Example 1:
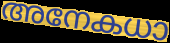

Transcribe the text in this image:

അനേകധാ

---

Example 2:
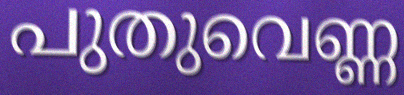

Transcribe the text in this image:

പുതുവെണ്ണ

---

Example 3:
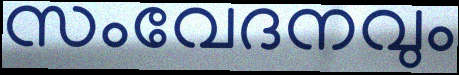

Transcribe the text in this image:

സംവേദനവും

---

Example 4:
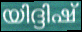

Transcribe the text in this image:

യിദ്ദിഷ്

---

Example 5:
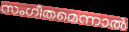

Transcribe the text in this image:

സംഗീതമെന്നാൽ